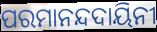
ପରମାନନ୍ଦଦାୟିନୀ